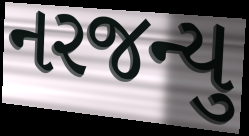
નરજન્યુ